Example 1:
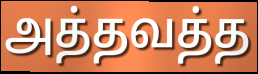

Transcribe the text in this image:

அத்தவத்த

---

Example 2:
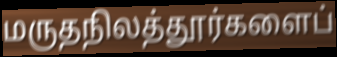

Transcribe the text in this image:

மருதநிலத்தூர்களைப்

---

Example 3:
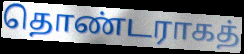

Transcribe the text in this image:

தொண்டராகத்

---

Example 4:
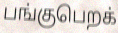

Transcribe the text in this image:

பங்குபெறக்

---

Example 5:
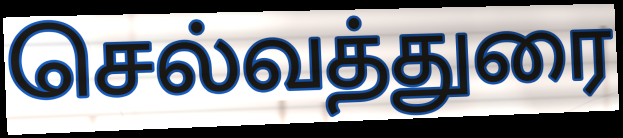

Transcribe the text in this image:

செல்வத்துரை